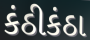
કંઠીકંઠા